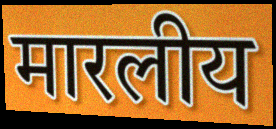
मारलीय